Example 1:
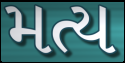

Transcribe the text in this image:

મત્ય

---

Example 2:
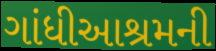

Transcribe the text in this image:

ગાંધીઆશ્રમની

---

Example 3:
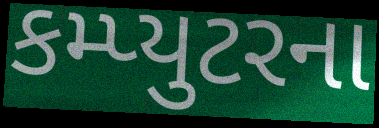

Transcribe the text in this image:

કમ્પ્યુટરના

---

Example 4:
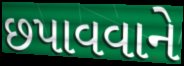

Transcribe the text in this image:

છપાવવાને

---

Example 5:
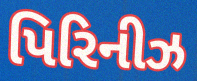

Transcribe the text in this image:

પિરિનીઝ